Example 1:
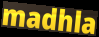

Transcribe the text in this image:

madhla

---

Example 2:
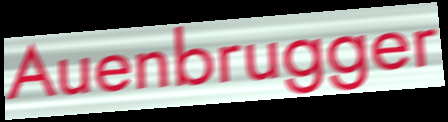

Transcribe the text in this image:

Auenbrugger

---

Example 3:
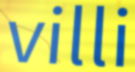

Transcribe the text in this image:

villi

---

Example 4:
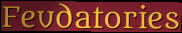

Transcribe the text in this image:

Feudatories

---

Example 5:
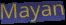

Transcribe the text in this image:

Mayan